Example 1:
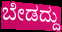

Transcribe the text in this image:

ಬೇಡದ್ದು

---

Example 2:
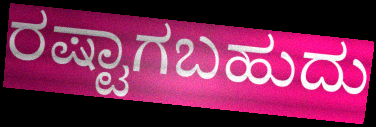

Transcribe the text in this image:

ರಷ್ಟಾಗಬಹುದು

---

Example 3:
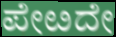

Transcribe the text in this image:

ಪೇೞದೇ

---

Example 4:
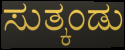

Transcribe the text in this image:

ಸುತ್ಕಂಡು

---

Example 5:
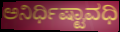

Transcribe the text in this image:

ಅನಿರ್ಧಿಷ್ಟಾವಧಿ